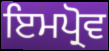
ਇਮਪ੍ਰੋਵ